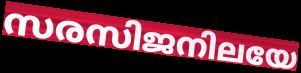
സരസിജനിലയേ